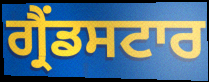
ਗ੍ਰੈਂਡਸਟਾਰ